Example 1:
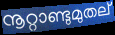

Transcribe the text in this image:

നൂറ്റാണ്ടുമുതല്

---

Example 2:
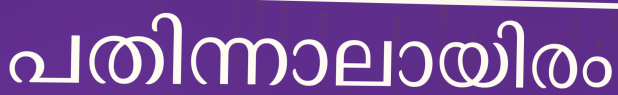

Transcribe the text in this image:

പതിന്നാലായിരം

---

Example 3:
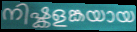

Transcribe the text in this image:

നിഷ്കളങ്കയായ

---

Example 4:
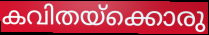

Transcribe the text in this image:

കവിതയ്ക്കൊരു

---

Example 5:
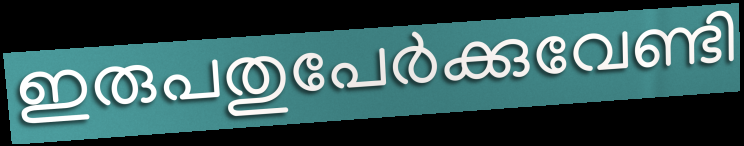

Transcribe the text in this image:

ഇരുപതുപേർക്കുവേണ്ടി